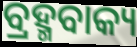
ବ୍ରହ୍ମବାକ୍ୟ